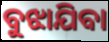
ବୁଝାଯିବା